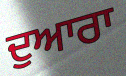
ਦੁਆਰਾ